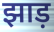
झाड़